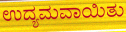
ಉದ್ಯಮವಾಯಿತು